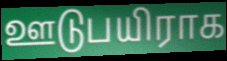
ஊடுபயிராக